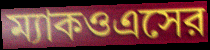
ম্যাকওএসের